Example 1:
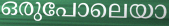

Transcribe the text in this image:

ഒരുപോലെയാ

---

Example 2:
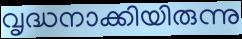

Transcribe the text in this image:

വൃദ്ധനാക്കിയിരുന്നു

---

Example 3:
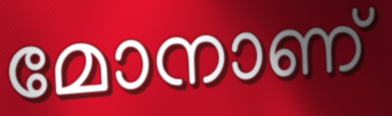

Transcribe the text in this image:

മോനാണ്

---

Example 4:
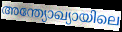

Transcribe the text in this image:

അന്ത്യോഖ്യായിലെ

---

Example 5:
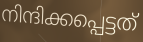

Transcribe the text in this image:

നിന്ദിക്കപ്പെട്ടത്